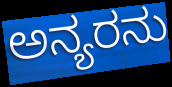
ಅನ್ಯರನು